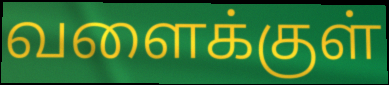
வளைக்குள்